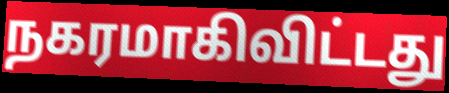
நகரமாகிவிட்டது